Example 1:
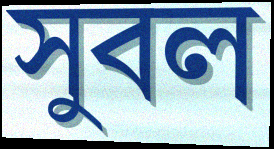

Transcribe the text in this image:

সুবল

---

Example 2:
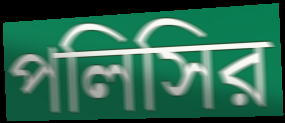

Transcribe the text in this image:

পলিসির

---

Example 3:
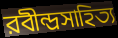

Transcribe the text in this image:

রবীন্দ্রসাহিত্য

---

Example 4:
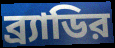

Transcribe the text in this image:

ব্র্যাডির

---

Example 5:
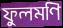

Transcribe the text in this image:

ফুলমণি